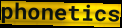
phonetics